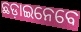
ଛଡ଼ାଇନେବେ